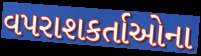
વપરાશકર્તાઓના